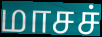
மாசச்